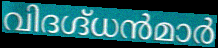
വിദഗ്ദ്ധൻമാർ